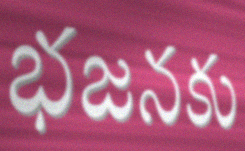
భజనకు